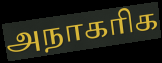
அநாகரிக